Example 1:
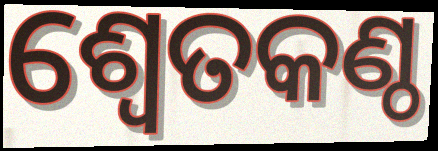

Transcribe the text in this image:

ଶ୍ୱେତକଣ୍ଠ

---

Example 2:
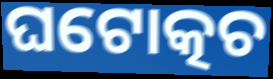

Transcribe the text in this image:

ଘଟୋତ୍କଚ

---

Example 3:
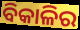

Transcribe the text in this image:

ବିକାଳିର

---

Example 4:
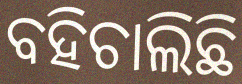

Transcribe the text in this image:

ବହିଚାଲିଛି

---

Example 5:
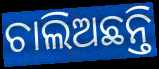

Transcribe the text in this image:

ଚାଲିଅଛନ୍ତି